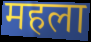
महला